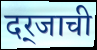
दर्जाची